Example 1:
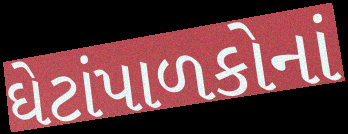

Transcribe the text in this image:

ઘેટાંપાળકોનાં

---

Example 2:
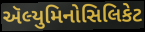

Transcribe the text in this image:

ઍલ્યુમિનોસિલિકેટ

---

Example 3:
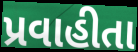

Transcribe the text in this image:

પ્રવાહીતા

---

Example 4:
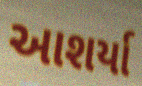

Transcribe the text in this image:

આશર્યા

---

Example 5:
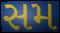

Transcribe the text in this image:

સમ